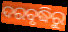
ଦରବୃଦ୍ଧିରୁ